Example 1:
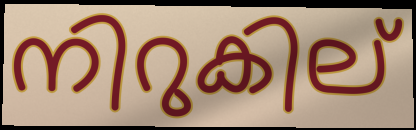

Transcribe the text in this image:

നിറുകില്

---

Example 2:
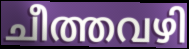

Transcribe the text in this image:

ചീത്തവഴി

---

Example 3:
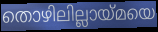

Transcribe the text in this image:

തൊഴിലില്ലായ്മയെ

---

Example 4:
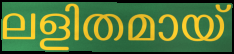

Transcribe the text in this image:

ലളിതമായ്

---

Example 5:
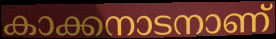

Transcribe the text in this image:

കാക്കനാടനാണ്